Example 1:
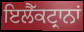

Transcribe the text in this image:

ਇਲੈੱਕਟ੍ਰਾਨਾਂ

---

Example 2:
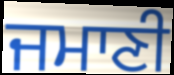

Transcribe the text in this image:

ਜਮਾਣੀ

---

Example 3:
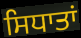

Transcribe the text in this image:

ਸਿਧਾਤਾਂ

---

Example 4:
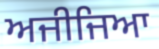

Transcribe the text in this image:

ਅਜੀਜਿਆ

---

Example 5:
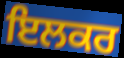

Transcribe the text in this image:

ਇਲਕਰ